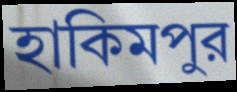
হাকিমপুর